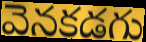
వెనకడగు